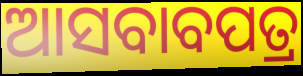
ଆସବାବପତ୍ର